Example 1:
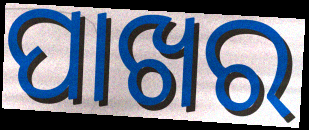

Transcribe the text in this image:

ପାଖର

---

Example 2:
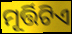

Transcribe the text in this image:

ମୂର୍ତ୍ତିଟିଏ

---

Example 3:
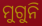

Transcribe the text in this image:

ମୁଗୁନି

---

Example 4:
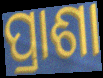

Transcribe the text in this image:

ପ୍ରାଶା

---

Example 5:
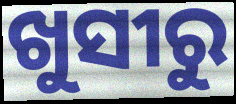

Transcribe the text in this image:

ଖୁସୀରୁ